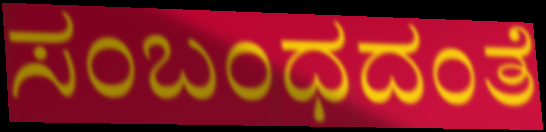
ಸಂಬಂಧದಂತೆ